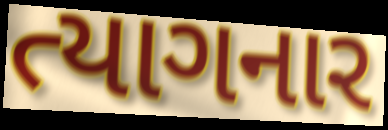
ત્યાગનાર